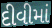
દીવીમાં